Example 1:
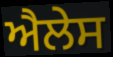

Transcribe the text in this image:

ਐਲੇਸ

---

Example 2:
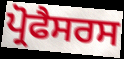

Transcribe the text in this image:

ਪ੍ਰੋਫੈਸਰਸ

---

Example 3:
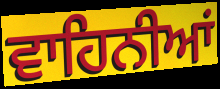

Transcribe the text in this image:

ਵਾਹਿਨੀਆਂ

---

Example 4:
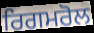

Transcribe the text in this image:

ਰਿਗਮਰੋਲ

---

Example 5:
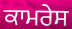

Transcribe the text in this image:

ਕਾਮਰੇਸ